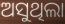
ଅସୁଥିଲା